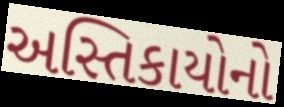
અસ્તિકાયોનો